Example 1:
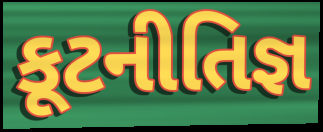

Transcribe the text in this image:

કૂટનીતિજ્ઞ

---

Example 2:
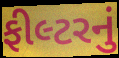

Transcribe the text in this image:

ફીલ્ટરનું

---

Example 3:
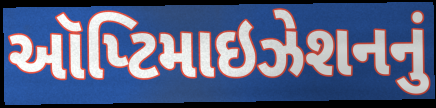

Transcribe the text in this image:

ઑપ્ટિમાઇઝેશનનું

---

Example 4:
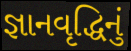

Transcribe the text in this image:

જ્ઞાનવૃદ્ધિનું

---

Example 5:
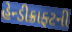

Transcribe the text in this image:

હેન્ડીક્રાફ્ટની